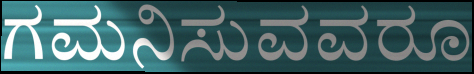
ಗಮನಿಸುವವರೂ